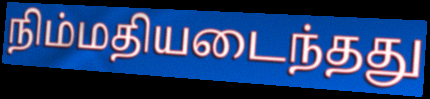
நிம்மதியடைந்தது